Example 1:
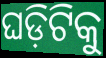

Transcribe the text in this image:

ଘଡ଼ିଟିକୁ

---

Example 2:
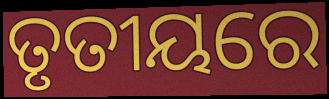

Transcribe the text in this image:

ତୃତୀୟରେ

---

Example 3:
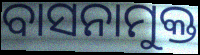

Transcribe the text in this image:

ବାସନାମୁକ୍ତ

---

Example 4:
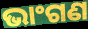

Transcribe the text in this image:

ଭାଂଗଣ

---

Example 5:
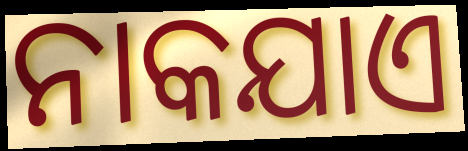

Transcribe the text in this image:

ନାକଯାଏ